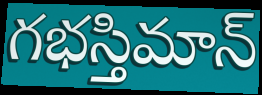
గభస్తిమాన్